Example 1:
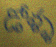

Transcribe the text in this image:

డోళ్ళ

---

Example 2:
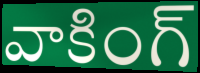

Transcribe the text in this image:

వాకింగ్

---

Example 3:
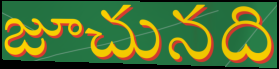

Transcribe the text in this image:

జూచునది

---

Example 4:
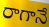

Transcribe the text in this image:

రాగానే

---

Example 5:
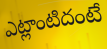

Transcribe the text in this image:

ఎట్లాంటిదంటే